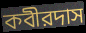
কবীরদাস